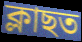
ক্লাছত